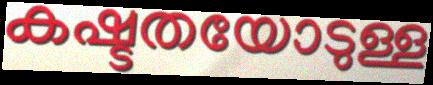
കഷ്ടതയോടുള്ള